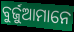
ବୁର୍ଜୁଆମାନେ